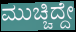
ಮುಚ್ಚಿದ್ದೇ